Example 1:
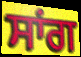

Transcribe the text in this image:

ਸਾਂਗ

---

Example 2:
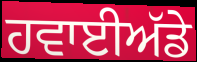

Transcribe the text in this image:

ਹਵਾਈਅੱਡੇ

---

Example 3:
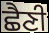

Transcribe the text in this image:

ਛੈਣੀ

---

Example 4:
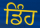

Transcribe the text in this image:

ਡਿੰਹ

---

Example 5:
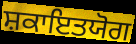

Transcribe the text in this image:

ਸ਼ਕਾਇਤਯੋਗ